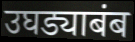
उघड्याबंब